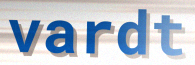
vardt